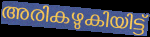
അരികഴുകിയിട്ട്